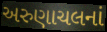
અરુણાચલનાં